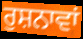
ਰੁਸ਼ਨਾਵਾਂ